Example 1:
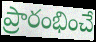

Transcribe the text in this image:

ప్రారంభించే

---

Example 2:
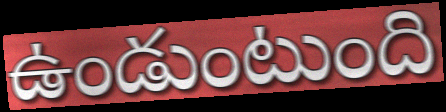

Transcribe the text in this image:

ఉండుంటుంది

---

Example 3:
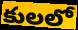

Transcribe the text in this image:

కులలో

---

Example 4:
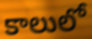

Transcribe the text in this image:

కాలులో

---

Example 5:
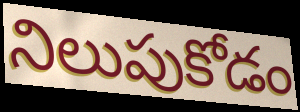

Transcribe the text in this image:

నిలుపుకోడం